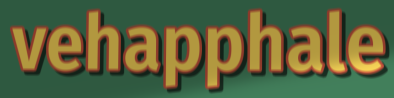
vehapphale